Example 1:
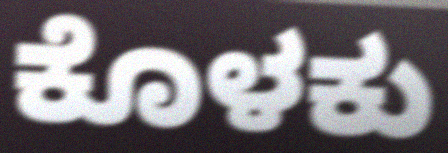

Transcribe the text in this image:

ಕೊಳಕು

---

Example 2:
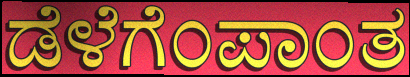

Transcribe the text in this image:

ಡೆಳೆಗೆಂಪಾಂತ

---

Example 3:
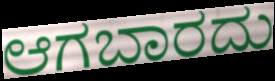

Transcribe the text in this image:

ಆಗಬಾರದು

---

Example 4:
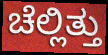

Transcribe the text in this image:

ಚೆಲ್ಲಿತ್ತು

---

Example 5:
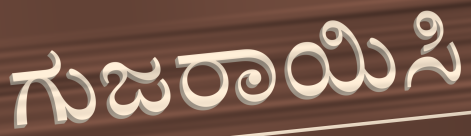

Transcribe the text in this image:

ಗುಜರಾಯಿಸಿ